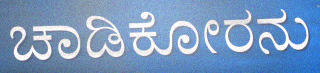
ಚಾಡಿಕೋರನು